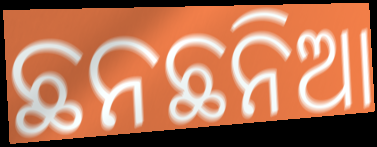
ଛନଛନିଆ